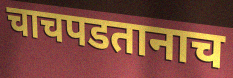
चाचपडतानाच